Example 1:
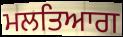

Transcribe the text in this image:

ਮਲਤਿਆਗ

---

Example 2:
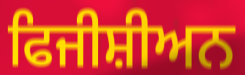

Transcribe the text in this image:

ਫਿਜੀਸ਼ੀਅਨ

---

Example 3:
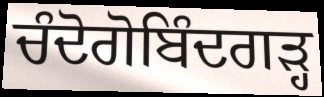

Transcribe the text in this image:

ਚੰਦੋਗੋਬਿੰਦਗੜ੍ਹ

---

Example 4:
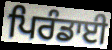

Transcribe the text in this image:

ਪਿਰੰਡਾਈ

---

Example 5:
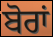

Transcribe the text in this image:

ਬੋਰਾਂ